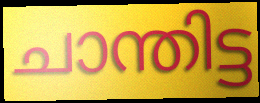
ചാന്തിട്ട